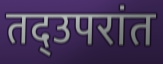
तद्उपरांत